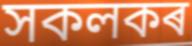
সকলকৰ